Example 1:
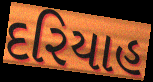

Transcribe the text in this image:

દરિયાહ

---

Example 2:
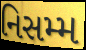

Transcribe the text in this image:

નિસમ્મ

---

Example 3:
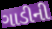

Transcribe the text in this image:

ગાડીની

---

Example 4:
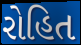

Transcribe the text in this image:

રોહિત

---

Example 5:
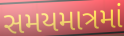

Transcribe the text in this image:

સમયમાત્રમાં